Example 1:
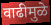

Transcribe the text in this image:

वाढीमुळे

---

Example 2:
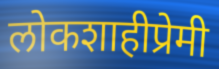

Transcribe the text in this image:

लोकशाहीप्रेमी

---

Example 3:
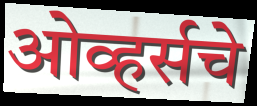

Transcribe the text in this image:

ओव्हर्सचे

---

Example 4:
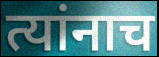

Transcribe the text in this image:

त्यांनाच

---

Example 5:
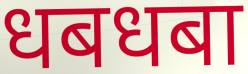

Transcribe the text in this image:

धबधबा